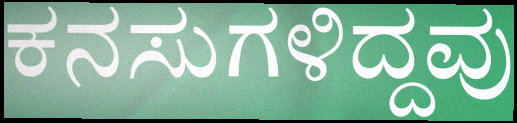
ಕನಸುಗಳಿದ್ದವು